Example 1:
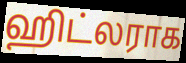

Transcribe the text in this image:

ஹிட்லராக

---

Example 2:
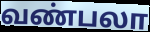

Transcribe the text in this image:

வண்பலா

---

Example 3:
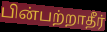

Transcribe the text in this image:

பின்பற்றாதீர்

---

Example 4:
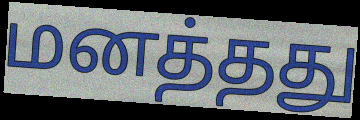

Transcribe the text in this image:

மனத்தது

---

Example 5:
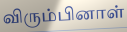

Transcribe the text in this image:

விரும்பினாள்